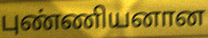
புண்ணியனான